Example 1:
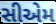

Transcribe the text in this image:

સીએમ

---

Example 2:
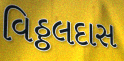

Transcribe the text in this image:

વિઠ્ઠલદાસ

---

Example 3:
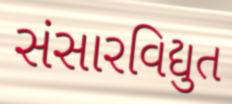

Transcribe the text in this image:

સંસારવિદ્યુત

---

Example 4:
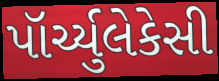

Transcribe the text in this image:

પૉર્ચ્યુલેકેસી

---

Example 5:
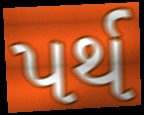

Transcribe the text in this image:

પર્થ